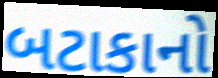
બટાકાનો